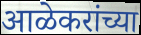
आळेकरांच्या